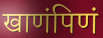
खाणंपिणं